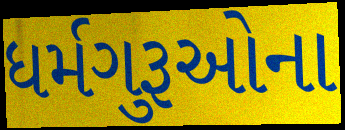
ધર્મગુરૂઓના